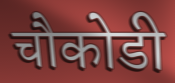
चौकोडी